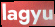
lagyu